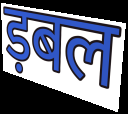
ड़बल